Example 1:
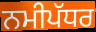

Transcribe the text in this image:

ਨਮੀਪੱਧਰ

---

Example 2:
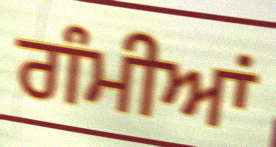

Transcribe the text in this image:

ਗੰਮੀਆਂ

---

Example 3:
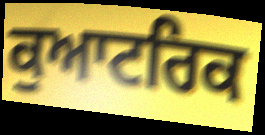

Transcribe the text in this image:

ਕੁਆਟਰਿਕ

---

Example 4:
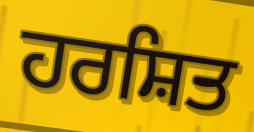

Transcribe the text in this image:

ਹਰਸ਼ਿਤ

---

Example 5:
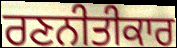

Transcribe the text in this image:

ਰਣਨੀਤੀਕਾਰ